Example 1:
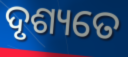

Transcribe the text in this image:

ଦୃଶ୍ୟତେ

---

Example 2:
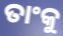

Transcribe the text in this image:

ତାଂକୁ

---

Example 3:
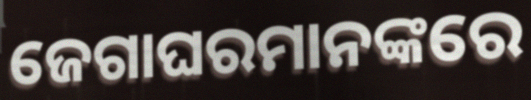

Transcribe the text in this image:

ଜେଗାଘରମାନଙ୍କରେ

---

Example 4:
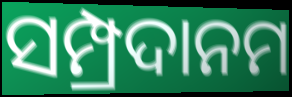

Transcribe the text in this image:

ସମ୍ପ୍ରଦାନମ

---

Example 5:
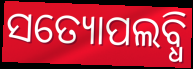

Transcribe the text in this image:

ସତ୍ୟୋପଲବ୍ଧି